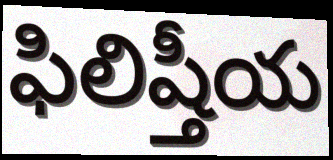
ఫిలిష్తీయ